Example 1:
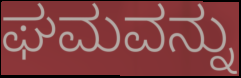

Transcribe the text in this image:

ಘಮವನ್ನು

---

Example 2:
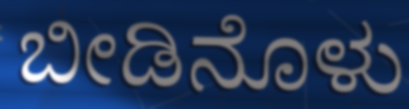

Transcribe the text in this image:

ಬೀಡಿನೊಳು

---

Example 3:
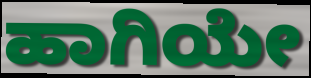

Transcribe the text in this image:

ಹಾಗಿಯೇ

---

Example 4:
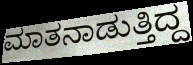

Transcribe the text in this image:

ಮಾತನಾಡುತ್ತಿದ್ದ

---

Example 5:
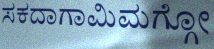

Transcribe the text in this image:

ಸಕದಾಗಾಮಿಮಗ್ಗೋ